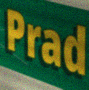
Prad